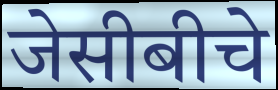
जेसीबीचे